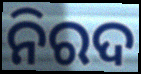
ନିରଦ